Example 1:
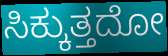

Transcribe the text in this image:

ಸಿಕ್ಕುತ್ತದೋ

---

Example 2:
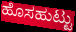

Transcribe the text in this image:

ಹೊಸಹುಟ್ಟು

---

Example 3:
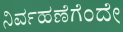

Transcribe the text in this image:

ನಿರ್ವಹಣೆಗೆಂದೇ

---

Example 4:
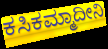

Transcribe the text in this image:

ಕಸಿಕಮ್ಮಾದೀನಿ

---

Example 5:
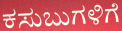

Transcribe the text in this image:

ಕಸುಬುಗಳಿಗೆ